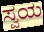
ಸ್ವಯ